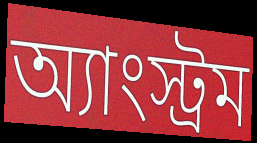
অ্যাংস্ট্রম